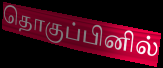
தொகுப்பினில்